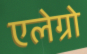
एलेग्रो